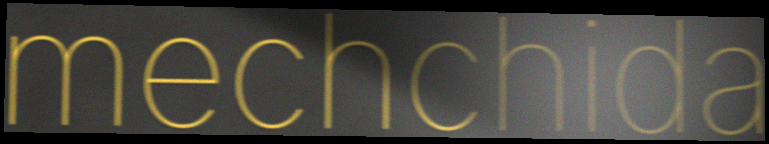
mechchida